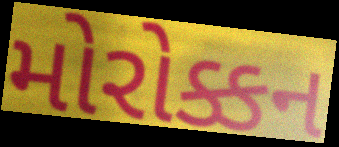
મોરોક્કન